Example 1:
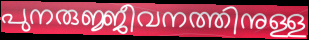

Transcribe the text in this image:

പുനരുജ്ജീവനത്തിനുള്ള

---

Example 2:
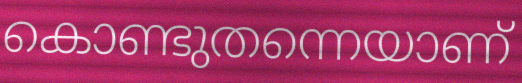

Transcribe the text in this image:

കൊണ്ടുതന്നെയാണ്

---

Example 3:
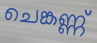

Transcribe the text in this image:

ചെങ്കണ്ണ്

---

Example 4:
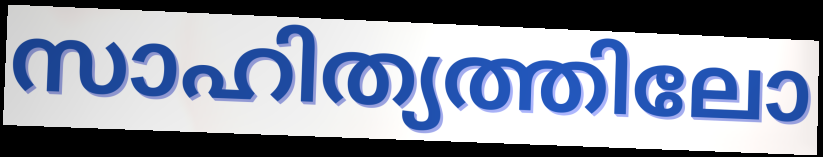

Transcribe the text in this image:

സാഹിത്യത്തിലോ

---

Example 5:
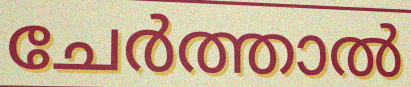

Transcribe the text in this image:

ചേർത്താൽ